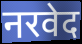
नरवेद